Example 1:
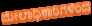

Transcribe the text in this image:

ಮೇಲಾಧಿಕಾರಿಗಳಿಂದ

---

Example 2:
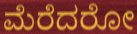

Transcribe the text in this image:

ಮೆರೆದರೋ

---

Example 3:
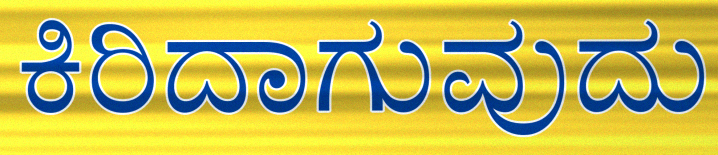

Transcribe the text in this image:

ಕಿರಿದಾಗುವುದು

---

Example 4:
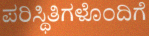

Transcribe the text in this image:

ಪರಿಸ್ಥಿತಿಗಳೊಂದಿಗೆ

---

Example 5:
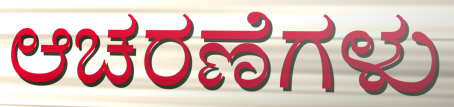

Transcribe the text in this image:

ಆಚರಣೆಗಳು